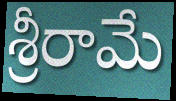
శ్రీరామే